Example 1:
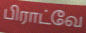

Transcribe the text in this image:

பிராட்வே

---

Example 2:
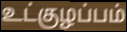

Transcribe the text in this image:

உட்குழப்பம்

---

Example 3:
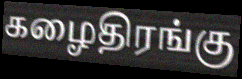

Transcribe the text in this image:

கழைதிரங்கு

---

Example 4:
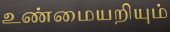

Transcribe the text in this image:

உண்மையறியும்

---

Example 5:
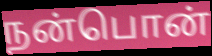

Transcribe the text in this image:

நன்பொன்